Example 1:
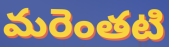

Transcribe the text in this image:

మరెంతటి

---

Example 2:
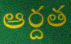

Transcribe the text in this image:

ఆర్దత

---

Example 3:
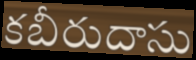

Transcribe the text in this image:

కబీరుదాసు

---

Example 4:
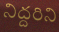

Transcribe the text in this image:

నిద్దరిని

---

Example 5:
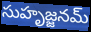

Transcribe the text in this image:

సుహృజ్జనమ్